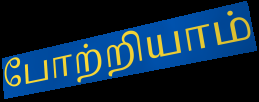
போற்றியாம்